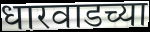
धारवाडच्या